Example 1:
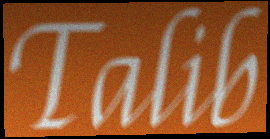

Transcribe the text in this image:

Talib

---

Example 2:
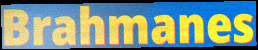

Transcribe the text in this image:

Brahmanes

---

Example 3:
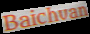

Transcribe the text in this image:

Baichuan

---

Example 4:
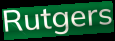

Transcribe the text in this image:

Rutgers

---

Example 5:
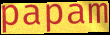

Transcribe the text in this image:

papam